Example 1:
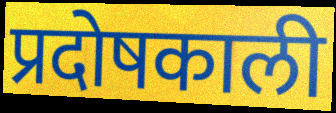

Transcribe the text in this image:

प्रदोषकाली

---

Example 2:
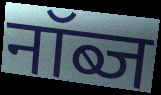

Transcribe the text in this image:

नॉब्ज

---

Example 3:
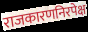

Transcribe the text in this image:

राजकारणनिरपेक्ष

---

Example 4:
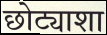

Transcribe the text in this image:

छोट्याशा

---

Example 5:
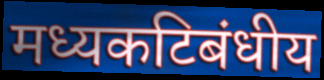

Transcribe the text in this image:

मध्यकटिबंधीय